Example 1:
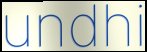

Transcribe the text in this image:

undhi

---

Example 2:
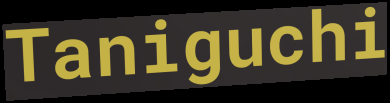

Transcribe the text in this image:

Taniguchi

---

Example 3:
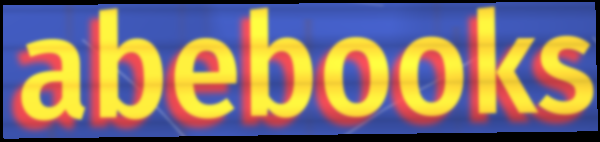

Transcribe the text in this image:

abebooks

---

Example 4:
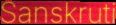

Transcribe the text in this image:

Sanskruti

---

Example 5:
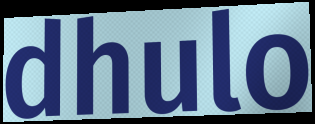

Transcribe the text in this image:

dhulo